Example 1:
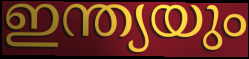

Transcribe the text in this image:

ഇന്ത്യയും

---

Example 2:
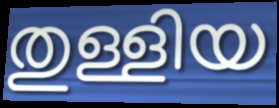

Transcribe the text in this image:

തുള്ളിയ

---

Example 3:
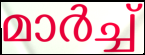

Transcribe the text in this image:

മാർച്ച്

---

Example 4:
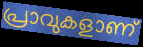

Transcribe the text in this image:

പ്രാവുകളാണ്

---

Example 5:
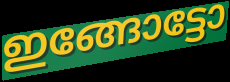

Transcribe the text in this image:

ഇങ്ങോട്ടോ